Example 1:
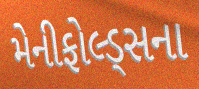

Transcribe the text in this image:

મેનીફોલ્ડ્સના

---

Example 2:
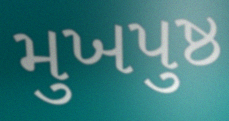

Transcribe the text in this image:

મુખપુષ્ઠ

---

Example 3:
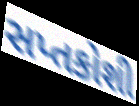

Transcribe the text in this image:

સપ્તકોશી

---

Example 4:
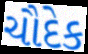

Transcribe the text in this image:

ચૌદેક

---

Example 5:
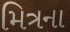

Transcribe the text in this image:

મિત્રના